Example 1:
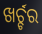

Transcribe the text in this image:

ଖର୍ଚ୍ଚର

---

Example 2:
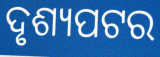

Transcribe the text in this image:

ଦୃଶ୍ୟପଟର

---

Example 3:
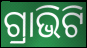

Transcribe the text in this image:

ଗ୍ରାଭିଟି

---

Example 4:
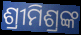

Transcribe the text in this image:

ଶ୍ରୀମିଶ୍ରଙ୍କ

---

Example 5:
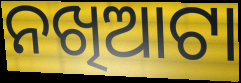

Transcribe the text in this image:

ନଖିଆଟା